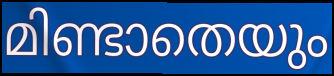
മിണ്ടാതെയും